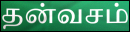
தன்வசம்